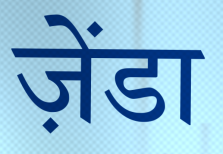
ज़ेंडा